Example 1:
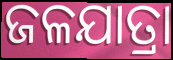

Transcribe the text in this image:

ଜଳଯାତ୍ରା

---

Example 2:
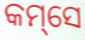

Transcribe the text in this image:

କମ୍‌ସେ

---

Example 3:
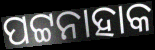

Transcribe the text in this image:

ପଟ୍ଟନାହାକ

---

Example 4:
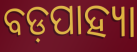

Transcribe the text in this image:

ବଡ଼ପାହ୍ୟା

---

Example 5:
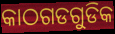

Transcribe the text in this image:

କାଠଗଡଗୁଡିକ